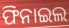
ଫିନାଇଲ